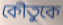
কৌতুকে